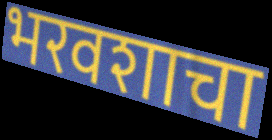
भरवशाचा